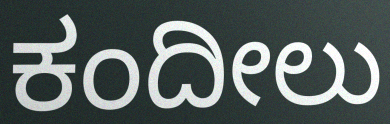
ಕಂದೀಲು